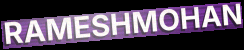
RAMESHMOHAN